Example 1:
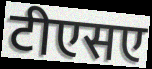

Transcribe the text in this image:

टीएसए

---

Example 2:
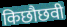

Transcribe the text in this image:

किछौछवी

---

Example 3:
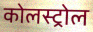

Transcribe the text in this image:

कोलस्ट्रोल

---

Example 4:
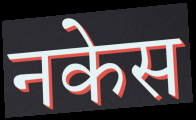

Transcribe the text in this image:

नकेस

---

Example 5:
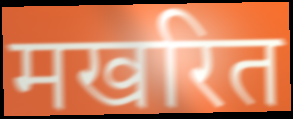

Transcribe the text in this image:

मखरित